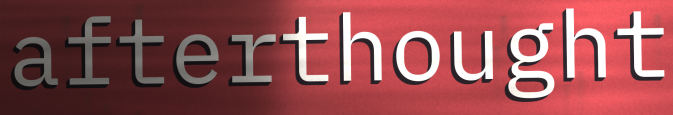
afterthought